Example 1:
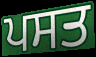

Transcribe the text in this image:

ਪਸਤ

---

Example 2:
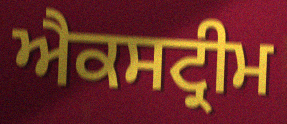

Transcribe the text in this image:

ਐਕਸਟ੍ਰੀਮ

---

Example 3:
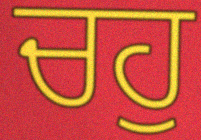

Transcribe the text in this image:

ਚਹੁ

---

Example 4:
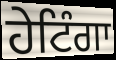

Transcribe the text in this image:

ਹੇਟਿੰਗਾ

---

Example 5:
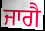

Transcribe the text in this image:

ਜਾਗੈ